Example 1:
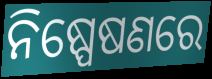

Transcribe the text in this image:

ନିଷ୍ପେଷଣରେ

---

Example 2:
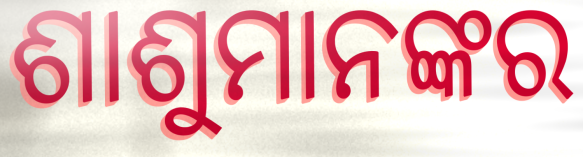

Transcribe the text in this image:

ଶାଶୁମାନଙ୍କର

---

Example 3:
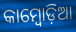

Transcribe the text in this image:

କାମ୍ବୋଡ଼ିଆ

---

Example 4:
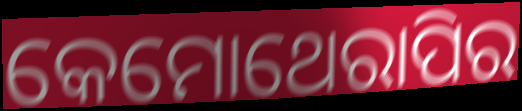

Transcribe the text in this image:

କେମୋଥେରାପିର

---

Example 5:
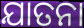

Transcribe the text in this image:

ଯାତନା